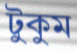
টুকুম